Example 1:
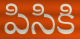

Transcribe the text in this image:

పిసికి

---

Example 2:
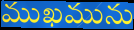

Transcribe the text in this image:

ముఖమును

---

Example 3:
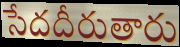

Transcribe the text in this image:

సేదదీరుతారు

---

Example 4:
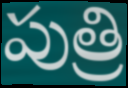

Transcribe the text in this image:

పుత్రి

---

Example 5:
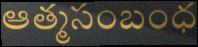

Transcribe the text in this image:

ఆత్మసంబంధ